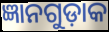
ଜ୍ଞାନଗୁଡ଼ାକ